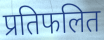
प्रतिफलित